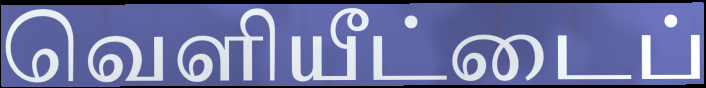
வெளியீட்டைப்